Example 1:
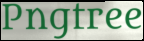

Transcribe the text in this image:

Pngtree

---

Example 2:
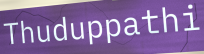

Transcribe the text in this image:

Thuduppathi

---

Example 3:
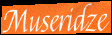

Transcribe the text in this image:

Museridze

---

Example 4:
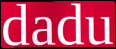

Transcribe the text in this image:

dadu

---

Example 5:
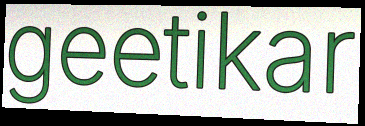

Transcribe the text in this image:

geetikar